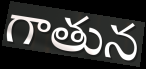
గాతున